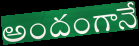
అందంగానే